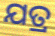
ଯତ୍ର